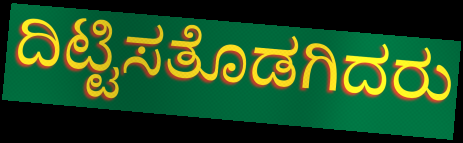
ದಿಟ್ಟಿಸತೊಡಗಿದರು